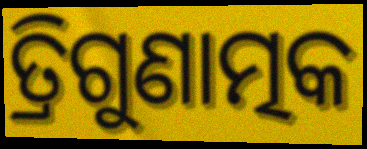
ତ୍ରିଗୁଣାତ୍ମକ